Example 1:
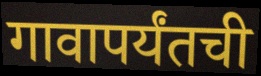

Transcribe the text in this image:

गावापर्यंतची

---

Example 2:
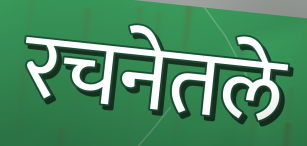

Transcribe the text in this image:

रचनेतले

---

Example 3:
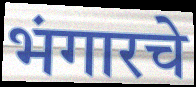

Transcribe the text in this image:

भंगारचे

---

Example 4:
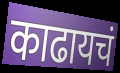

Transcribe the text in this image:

काढायचं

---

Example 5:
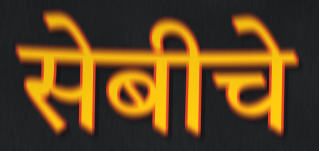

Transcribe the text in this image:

सेबीचे